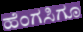
ಹೆಂಗಸಿಗೂ